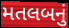
મતલબનું